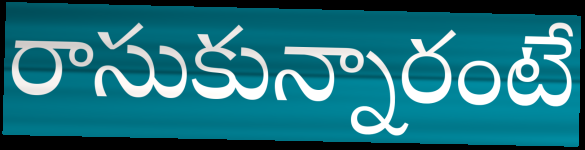
రాసుకున్నారంటే